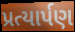
પ્રત્યાર્પણ